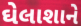
ઘેલાશાને